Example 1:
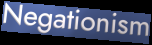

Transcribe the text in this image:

Negationism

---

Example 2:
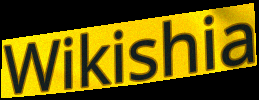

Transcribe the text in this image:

Wikishia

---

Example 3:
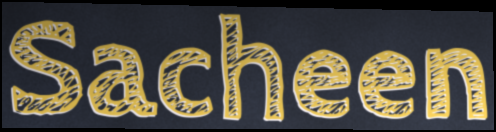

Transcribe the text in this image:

Sacheen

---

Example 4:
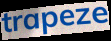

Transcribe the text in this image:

trapeze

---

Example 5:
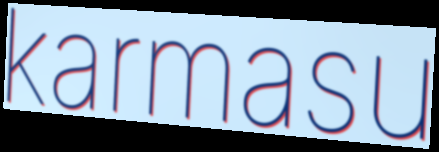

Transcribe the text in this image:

karmasu